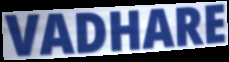
VADHARE